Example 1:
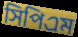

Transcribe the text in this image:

সিপিএম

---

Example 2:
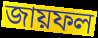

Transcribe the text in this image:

জায়ফল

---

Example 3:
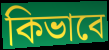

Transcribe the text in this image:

কিভাবে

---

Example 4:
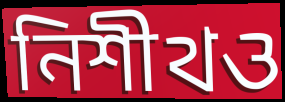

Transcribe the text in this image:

নিশীথও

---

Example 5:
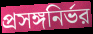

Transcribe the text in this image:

প্রসঙ্গনির্ভর